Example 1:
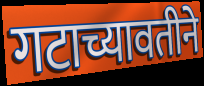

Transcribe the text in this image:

गटाच्यावतीने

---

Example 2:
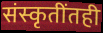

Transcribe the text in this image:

संस्कृतींतही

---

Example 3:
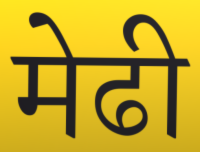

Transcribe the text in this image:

मेढी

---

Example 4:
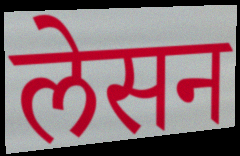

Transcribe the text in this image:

लेसन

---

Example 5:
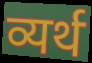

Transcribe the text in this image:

व्यर्थ